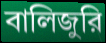
বালিজুরি